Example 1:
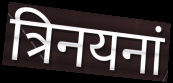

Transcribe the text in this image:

त्रिनयनां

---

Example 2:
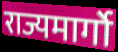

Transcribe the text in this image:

राज्यमार्गो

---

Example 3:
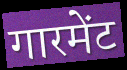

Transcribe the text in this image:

गारमेंट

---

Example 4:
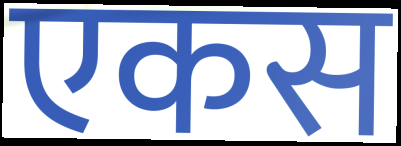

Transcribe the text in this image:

एकस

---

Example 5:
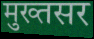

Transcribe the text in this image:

मुख्तसर